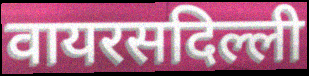
वायरसदिल्ली